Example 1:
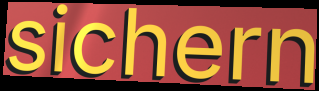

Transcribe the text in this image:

sichern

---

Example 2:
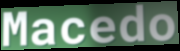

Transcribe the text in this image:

Macedo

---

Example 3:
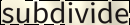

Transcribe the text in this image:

subdivide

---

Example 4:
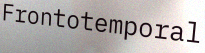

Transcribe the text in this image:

Frontotemporal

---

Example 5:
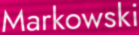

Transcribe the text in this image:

Markowski